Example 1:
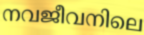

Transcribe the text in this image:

നവജീവനിലെ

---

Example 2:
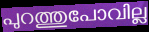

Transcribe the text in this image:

പുറത്തുപോവില്ല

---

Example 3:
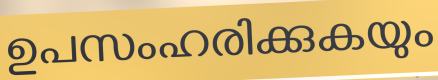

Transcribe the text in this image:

ഉപസംഹരിക്കുകയും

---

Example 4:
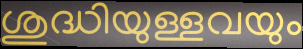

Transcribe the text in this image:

ശുദ്ധിയുള്ളവയും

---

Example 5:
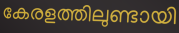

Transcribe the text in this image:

കേരളത്തിലുണ്ടായി